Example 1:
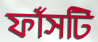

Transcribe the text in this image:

ফাঁসটি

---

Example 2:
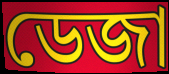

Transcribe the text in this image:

ডেজা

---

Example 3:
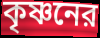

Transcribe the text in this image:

কৃষ্ণনের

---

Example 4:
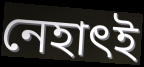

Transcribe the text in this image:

নেহাৎই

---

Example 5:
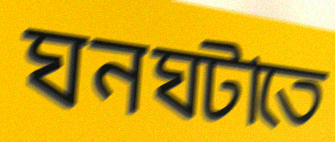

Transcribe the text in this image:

ঘনঘটাতে